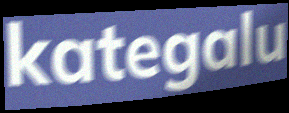
kategalu